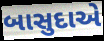
બાસુદાએ